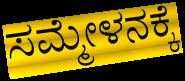
ಸಮ್ಮೇಳನಕ್ಕೆ